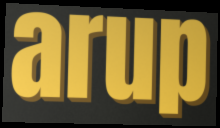
arup